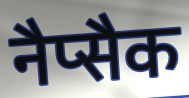
नैप्सैक